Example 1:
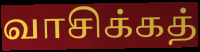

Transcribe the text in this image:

வாசிக்கத்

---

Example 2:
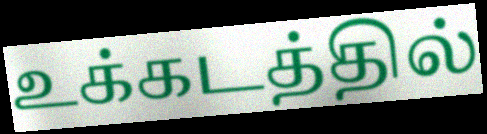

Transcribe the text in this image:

உக்கடத்தில்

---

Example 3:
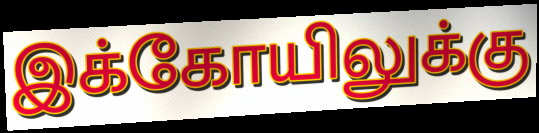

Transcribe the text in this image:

இக்கோயிலுக்கு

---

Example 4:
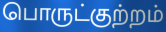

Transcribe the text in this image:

பொருட்குற்றம்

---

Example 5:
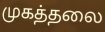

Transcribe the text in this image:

முகத்தலை